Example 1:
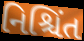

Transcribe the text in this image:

નિશ્ચિંત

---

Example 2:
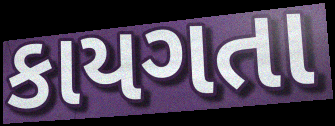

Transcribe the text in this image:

કાયગતા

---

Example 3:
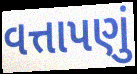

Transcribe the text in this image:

વત્તાપણું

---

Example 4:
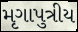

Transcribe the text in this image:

મૃગાપુત્રીય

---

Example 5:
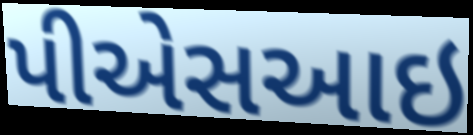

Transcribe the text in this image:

પીએસઆઇ